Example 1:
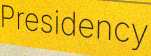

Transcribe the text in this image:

Presidency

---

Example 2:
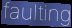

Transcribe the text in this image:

faulting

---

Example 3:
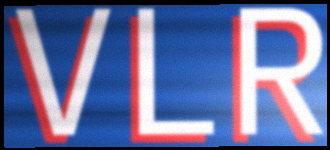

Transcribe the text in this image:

VLR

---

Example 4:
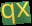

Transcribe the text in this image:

qx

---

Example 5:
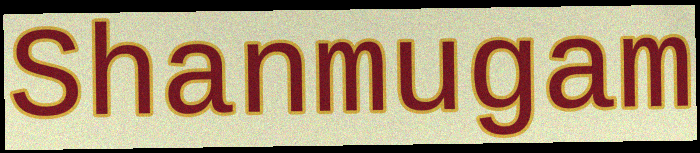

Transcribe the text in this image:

Shanmugam